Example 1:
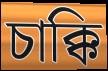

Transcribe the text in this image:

চাক্কি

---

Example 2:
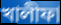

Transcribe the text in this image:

খালীফা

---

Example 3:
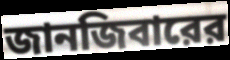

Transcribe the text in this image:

জানজিবারের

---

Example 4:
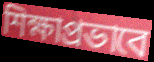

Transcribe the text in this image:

শিক্ষাপ্রভাবে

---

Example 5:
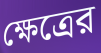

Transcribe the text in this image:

ক্ষেত্রের